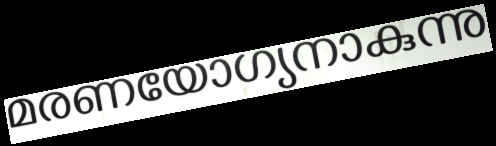
മരണയോഗ്യനാകുന്നു